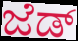
ಜೆಡ್